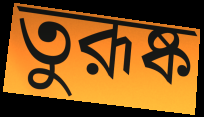
তুরূষ্ক